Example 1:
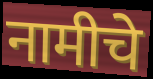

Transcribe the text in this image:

नामीचे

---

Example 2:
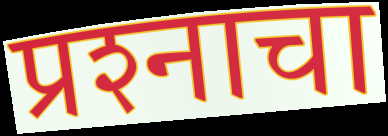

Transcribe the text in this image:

प्रश्नाचा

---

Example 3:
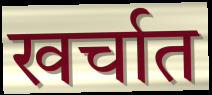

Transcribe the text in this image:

खर्चात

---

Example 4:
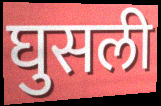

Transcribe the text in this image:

घुसली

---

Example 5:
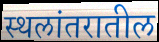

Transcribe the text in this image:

स्थलांतरातील